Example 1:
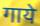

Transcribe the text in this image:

गाये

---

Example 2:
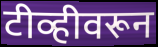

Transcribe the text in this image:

टीव्हीवरून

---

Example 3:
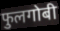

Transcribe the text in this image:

फुलगोबी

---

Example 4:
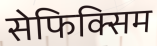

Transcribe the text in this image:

सेफिक्सिम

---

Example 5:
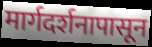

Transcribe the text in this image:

मार्गदर्शनापासून